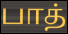
பாத்